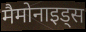
मैमोनाइड्स